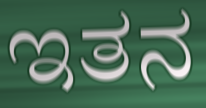
ಇತನ